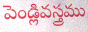
పెండ్లివస్త్రము